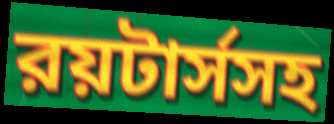
রয়টার্সসহ